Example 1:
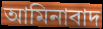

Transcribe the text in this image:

আমিনাবাদ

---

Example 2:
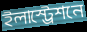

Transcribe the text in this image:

ইলাস্ট্রেশনে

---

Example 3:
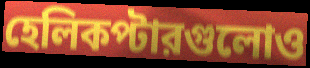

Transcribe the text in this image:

হেলিকপ্টারগুলোও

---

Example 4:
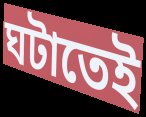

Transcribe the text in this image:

ঘটাতেই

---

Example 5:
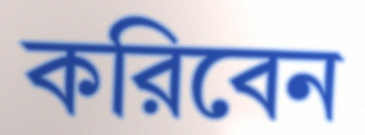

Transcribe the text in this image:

করিবেন